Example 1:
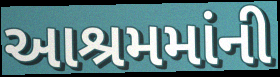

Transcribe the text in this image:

આશ્રમમાંની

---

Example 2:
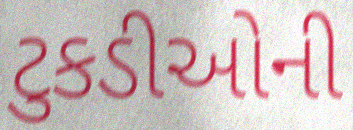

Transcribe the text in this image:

ટુકડીઓની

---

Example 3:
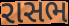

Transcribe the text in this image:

રાસભ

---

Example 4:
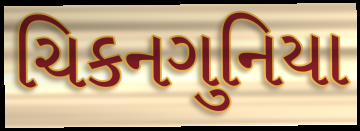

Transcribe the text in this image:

ચિકનગુનિયા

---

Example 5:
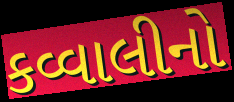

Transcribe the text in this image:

કવ્વાલીનો